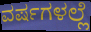
ವರ್ಷಗಳಲ್ಲೆ